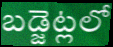
బడ్జెట్లలో